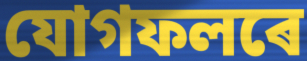
যোগফলৰে